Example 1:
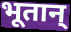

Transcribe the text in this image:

भूतान्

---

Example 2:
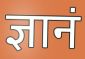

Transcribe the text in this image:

ज्ञानं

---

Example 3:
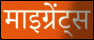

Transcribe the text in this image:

माइग्रेंट्स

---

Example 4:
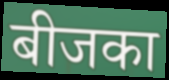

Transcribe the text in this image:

बीजका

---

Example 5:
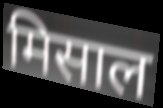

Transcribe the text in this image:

मिसाल